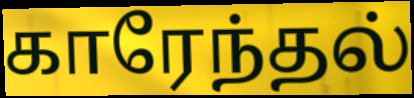
காரேந்தல்